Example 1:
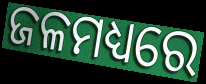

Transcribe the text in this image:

ଜଳମଧ୍ଯରେ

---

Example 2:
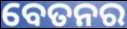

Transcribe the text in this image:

ବେତନର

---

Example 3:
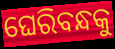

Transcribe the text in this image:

ଘେରିବନ୍ଧକୁ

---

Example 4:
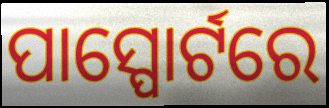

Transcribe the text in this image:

ପାସ୍ପୋର୍ଟରେ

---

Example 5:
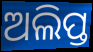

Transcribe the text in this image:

ଅଲିପ୍ତ